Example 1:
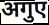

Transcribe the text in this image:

अगुए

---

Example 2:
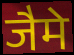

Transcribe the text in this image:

जैमे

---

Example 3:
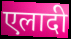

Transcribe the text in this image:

एलादी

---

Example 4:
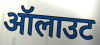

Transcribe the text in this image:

ऑलाउट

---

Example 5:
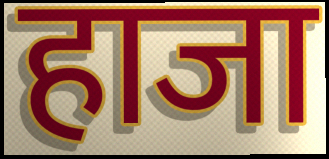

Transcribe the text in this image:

हाजा